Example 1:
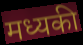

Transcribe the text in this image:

मध्यकी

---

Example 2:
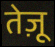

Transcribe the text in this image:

तेज़ू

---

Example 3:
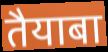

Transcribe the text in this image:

तैयाबा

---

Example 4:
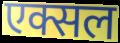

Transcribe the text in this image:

एक्सल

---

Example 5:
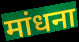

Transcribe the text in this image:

मांधना